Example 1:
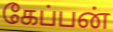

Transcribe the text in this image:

கேப்பன்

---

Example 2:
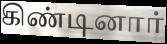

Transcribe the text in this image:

கிண்டினார்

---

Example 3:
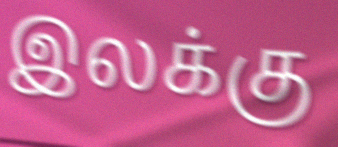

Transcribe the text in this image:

இலக்கு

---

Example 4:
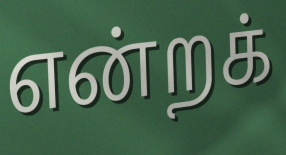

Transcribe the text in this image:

என்றக்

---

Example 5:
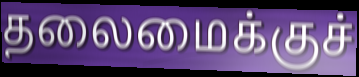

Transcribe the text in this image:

தலைமைக்குச்